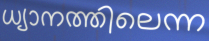
ധ്യാനത്തിലെന്ന